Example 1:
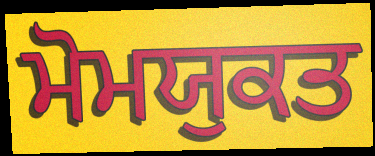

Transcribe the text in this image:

ਮੋਮਯੁਕਤ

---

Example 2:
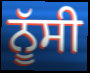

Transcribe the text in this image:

ਨੂੱਸੀ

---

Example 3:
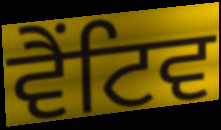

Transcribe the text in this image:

ਵੈਂਟਿਵ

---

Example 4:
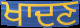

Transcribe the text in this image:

ਖਾਦਣ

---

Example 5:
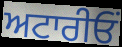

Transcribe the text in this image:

ਅਟਾਰੀਓਂ